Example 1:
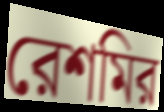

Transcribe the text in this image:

রেশমির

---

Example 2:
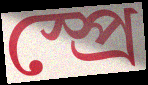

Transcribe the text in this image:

স্প্রে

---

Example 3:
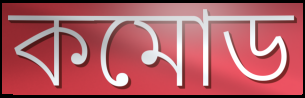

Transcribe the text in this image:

কমোড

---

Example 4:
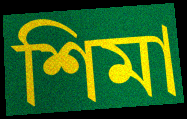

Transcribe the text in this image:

শিমা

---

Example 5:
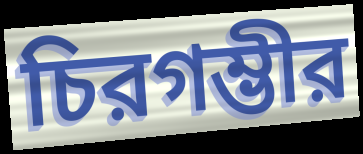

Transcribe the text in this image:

চিরগম্ভীর